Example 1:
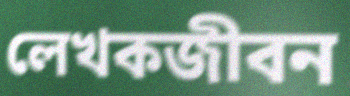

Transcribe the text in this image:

লেখকজীবন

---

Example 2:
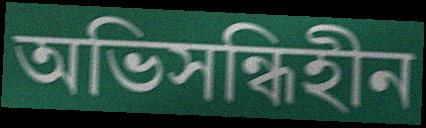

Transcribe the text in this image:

অভিসন্ধিহীন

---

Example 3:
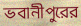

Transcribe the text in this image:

ভবানীপুরের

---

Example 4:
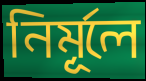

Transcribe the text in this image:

নির্মূলে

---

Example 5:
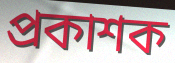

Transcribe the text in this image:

প্রকাশক